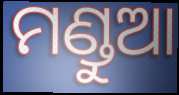
ମଣ୍ଡୁଆ